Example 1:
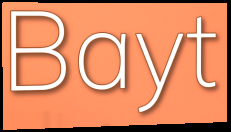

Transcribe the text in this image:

Bayt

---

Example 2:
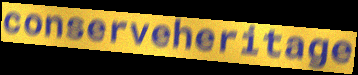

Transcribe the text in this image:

conserveheritage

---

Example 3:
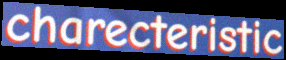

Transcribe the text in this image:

charecteristic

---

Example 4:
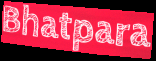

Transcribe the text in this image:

Bhatpara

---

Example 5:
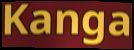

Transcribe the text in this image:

Kanga